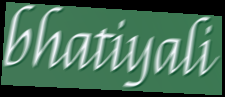
bhatiyali